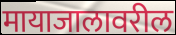
मायाजालावरील